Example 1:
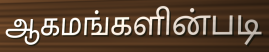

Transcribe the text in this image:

ஆகமங்களின்படி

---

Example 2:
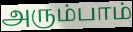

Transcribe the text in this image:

அரும்பாம்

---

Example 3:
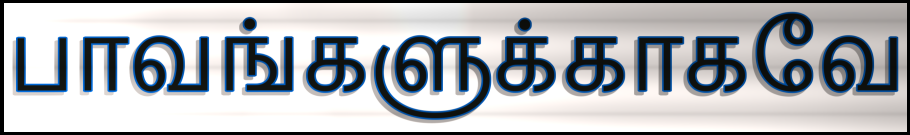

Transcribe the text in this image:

பாவங்களுக்காகவே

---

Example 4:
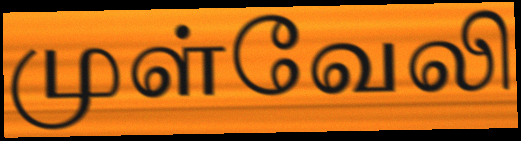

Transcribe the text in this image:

முள்வேலி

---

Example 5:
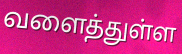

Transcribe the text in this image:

வளைத்துள்ள